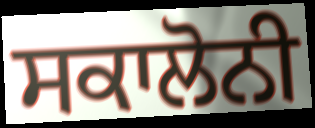
ਸਕਾਲੋਨੀ